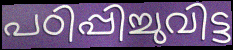
പഠിപ്പിച്ചുവിട്ട